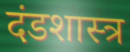
दंडशास्त्र